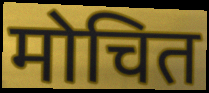
मोचित